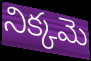
నిక్కమె